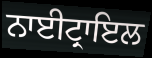
ਨਾਈਟ੍ਰਾਇਲ